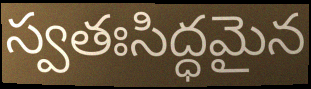
స్వతఃసిద్ధమైన